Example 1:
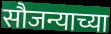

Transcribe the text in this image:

सौजन्याच्या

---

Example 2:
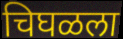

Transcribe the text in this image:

चिघळला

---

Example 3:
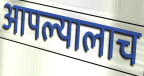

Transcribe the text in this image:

आपल्यालाच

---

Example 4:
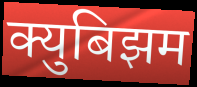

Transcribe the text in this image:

क्युबिझम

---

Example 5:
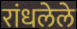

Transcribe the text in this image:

रांधलेले